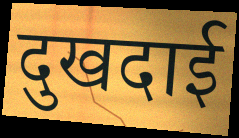
दुखदाई